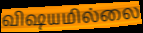
விஷயமில்லை